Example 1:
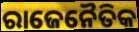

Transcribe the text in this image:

ରାଜେନୈତିକ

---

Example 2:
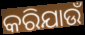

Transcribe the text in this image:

କରିଯାଉଁ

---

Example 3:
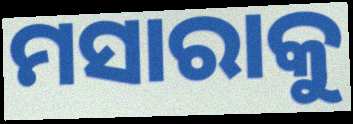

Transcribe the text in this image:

ମସାରାକୁ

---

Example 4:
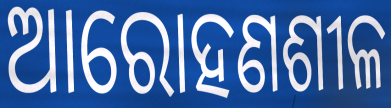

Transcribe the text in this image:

ଆରୋହଣଶୀଳ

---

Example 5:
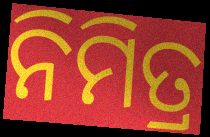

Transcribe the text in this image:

ନିମିତ୍ର